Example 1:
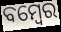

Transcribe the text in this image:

ବମ୍ୱେର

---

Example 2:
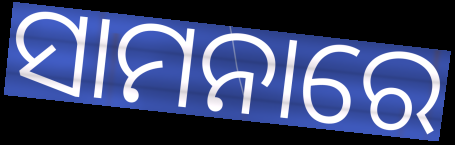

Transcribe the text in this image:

ସାମନାରେ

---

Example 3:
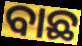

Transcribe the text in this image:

ବାଛ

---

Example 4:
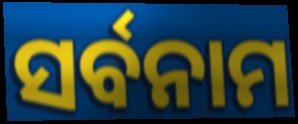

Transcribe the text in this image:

ସର୍ବନାମ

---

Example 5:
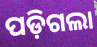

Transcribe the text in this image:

ପଡ଼ିଗଲା